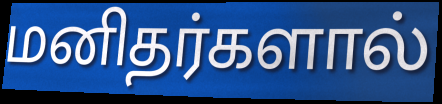
மனிதர்களால்